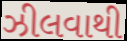
ઝીલવાથી